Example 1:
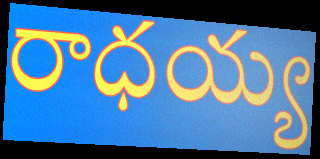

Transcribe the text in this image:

రాధయ్య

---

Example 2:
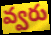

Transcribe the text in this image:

వ్వరు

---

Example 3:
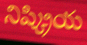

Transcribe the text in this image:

నిష్క్రియ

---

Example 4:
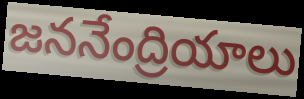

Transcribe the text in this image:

జననేంద్రియాలు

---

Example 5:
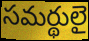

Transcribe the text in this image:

సమర్థులై